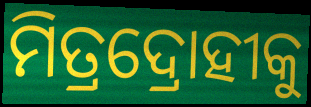
ମିତ୍ରଦ୍ରୋହୀକୁ